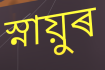
স্নায়ুৰ